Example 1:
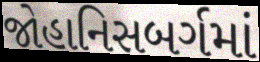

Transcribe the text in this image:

જોહાનિસબર્ગમાં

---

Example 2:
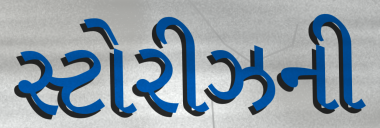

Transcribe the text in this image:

સ્ટોરીઝની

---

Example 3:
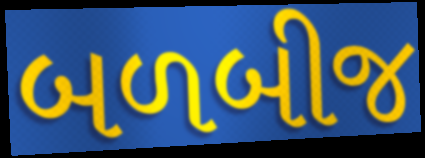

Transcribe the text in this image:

બળબીજ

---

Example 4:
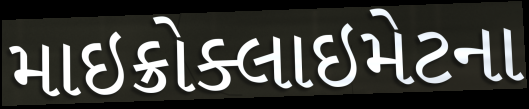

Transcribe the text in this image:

માઇક્રોક્લાઇમેટના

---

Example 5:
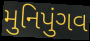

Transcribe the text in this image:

મુનિપુંગવ